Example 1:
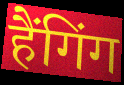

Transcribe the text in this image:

हैंगिंग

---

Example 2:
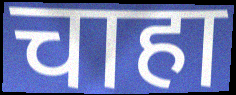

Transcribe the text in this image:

चाहा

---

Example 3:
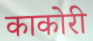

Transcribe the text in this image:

काकोरी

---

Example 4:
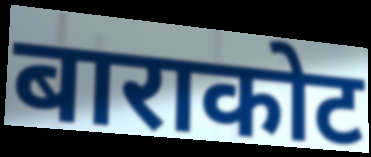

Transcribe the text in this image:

बाराकोट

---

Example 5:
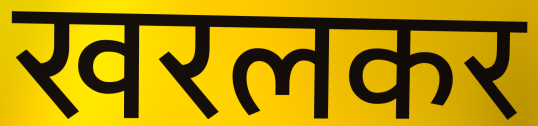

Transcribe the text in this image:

खरलकर